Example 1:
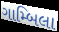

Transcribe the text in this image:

ગામ્બિલા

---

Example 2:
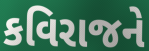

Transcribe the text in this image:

કવિરાજને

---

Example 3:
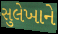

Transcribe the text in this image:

સુલેખાને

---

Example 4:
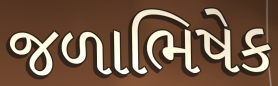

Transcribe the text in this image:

જળાભિષેક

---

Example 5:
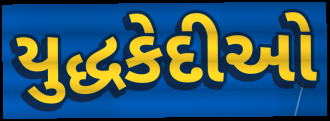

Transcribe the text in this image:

યુદ્ધકેદીઓ